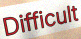
Difficult